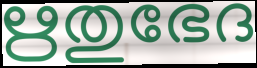
ഋതുഭേദ